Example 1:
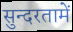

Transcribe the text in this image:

सुन्दरतामें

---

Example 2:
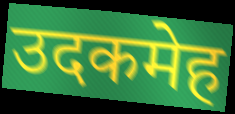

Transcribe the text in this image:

उदकमेह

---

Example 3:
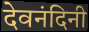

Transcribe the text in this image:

देवनंदिनी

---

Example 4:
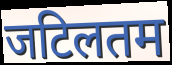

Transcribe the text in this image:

जटिलतम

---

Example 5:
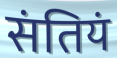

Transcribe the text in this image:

संतियं